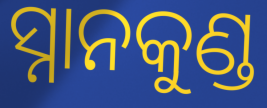
ସ୍ନାନକୁଣ୍ଡ